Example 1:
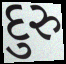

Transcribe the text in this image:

દુરુ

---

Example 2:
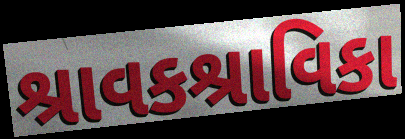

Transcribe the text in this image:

શ્રાવકશ્રાવિકા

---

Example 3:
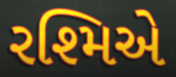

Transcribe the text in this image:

રશ્મિએ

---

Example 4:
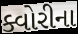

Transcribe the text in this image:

ક્વોરીના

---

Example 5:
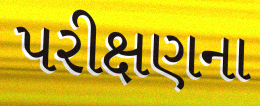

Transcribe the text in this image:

પરીક્ષણના